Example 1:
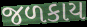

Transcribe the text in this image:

જળકાય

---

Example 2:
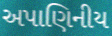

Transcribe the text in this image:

અપાણિનીય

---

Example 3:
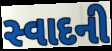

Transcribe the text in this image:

સ્વાદની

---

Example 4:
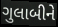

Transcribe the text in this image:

ગુલાબીને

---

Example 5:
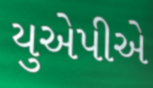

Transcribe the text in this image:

યુએપીએ